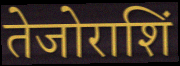
तेजोराशिं